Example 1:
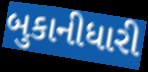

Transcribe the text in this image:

બુકાનીધારી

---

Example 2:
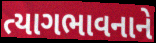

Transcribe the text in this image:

ત્યાગભાવનાને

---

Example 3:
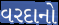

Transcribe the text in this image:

વરદાનો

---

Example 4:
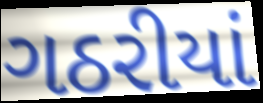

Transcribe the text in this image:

ગઠરીયાં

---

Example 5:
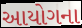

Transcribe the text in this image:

આયોગના